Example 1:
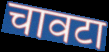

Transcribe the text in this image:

चावटा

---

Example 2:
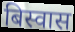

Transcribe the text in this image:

बिस्वास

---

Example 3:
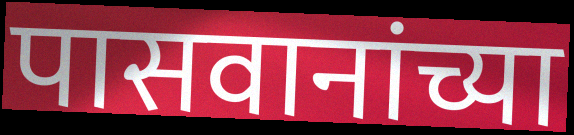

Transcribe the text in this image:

पासवानांच्या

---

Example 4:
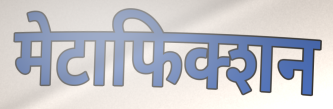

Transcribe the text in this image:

मेटाफिक्शन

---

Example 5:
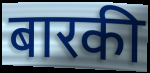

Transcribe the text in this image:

बारकी